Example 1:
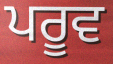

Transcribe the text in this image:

ਪਰੂਵ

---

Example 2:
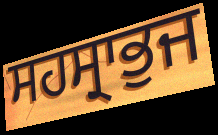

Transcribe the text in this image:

ਸਹਸ੍ਰਾਭੁਜ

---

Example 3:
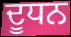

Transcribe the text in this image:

ਦੂਧਨ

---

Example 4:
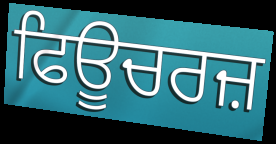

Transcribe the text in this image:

ਫਿਊਚਰਜ਼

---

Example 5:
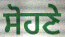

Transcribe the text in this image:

ਸੋਹਣੇ